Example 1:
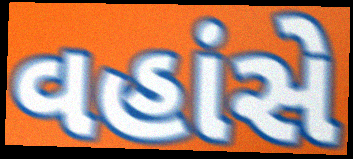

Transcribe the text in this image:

વહાંસે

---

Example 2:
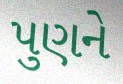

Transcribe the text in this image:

પુણને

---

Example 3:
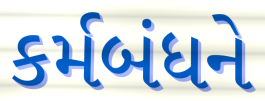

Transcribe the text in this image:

કર્મબંધને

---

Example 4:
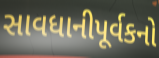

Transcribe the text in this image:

સાવધાનીપૂર્વકનો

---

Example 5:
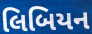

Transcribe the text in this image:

લિબિયન